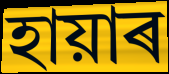
হায়াৰ